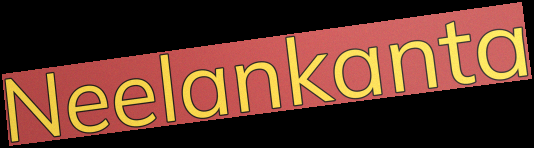
Neelankanta